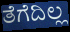
ತೆಗೆದಿಲ್ಲ